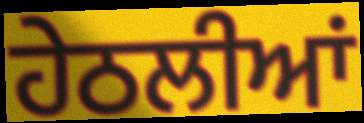
ਹੇਠਲੀਆਂ